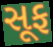
સૂફ